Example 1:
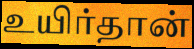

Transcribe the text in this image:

உயிர்தான்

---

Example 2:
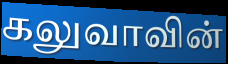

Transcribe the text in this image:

கலுவாவின்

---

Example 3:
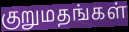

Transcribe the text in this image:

குறுமதங்கள்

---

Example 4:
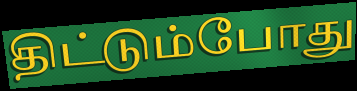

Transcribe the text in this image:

திட்டும்போது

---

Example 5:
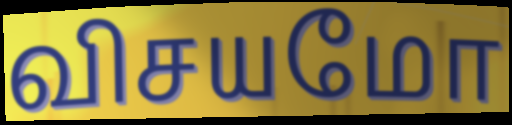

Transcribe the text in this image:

விசயமோ